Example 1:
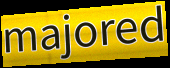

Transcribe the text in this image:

majored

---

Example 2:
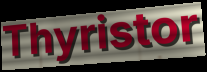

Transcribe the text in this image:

Thyristor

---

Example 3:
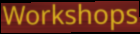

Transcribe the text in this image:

Workshops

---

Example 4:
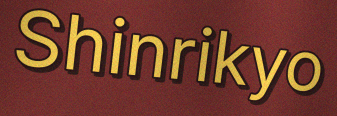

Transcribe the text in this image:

Shinrikyo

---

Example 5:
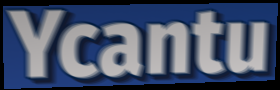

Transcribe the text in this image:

Ycantu